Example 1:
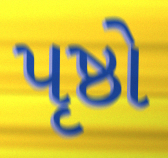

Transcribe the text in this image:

પૃષ્ઠો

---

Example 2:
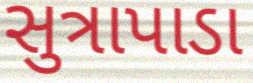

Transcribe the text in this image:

સુત્રાપાડા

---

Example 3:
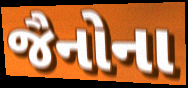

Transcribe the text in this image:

જૈનોના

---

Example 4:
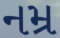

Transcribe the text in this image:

નમ્ર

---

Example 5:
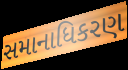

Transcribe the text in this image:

સમાનાધિકરણ